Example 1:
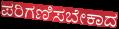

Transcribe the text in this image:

ಪರಿಗಣಿಸಬೇಕಾದ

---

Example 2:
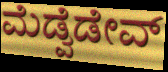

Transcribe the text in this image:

ಮೆಡ್ವೆಡೇವ್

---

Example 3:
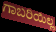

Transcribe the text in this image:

ಗಾಬರಿಯಿಲ್ಲ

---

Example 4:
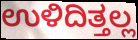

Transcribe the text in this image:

ಉಳಿದಿತ್ತಲ್ಲ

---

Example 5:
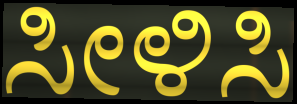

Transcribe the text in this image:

ಸೀಳಿಸಿ